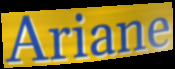
Ariane